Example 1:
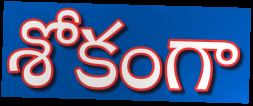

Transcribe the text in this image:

శోకంగా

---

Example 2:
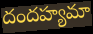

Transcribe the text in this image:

దందహ్యమా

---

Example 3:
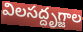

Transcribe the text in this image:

విలసద్దృగ్జాల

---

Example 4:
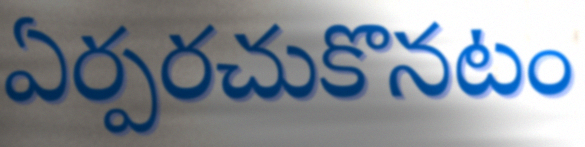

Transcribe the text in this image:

ఏర్పరచుకొనటం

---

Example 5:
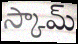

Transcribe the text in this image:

స్కామ్